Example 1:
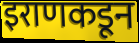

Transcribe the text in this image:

इराणकडून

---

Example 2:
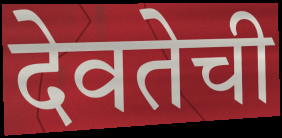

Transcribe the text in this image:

देवतेची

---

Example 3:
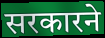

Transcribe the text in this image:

सरकारने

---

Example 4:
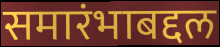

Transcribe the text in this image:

समारंभाबद्दल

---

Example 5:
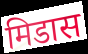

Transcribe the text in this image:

मिडास